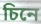
চিনে